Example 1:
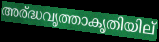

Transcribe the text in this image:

അര്ദ്ധവൃത്താകൃതിയില്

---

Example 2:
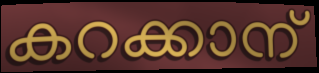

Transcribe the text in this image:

കറക്കാന്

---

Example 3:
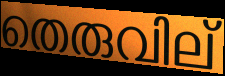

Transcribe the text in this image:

തെരുവില്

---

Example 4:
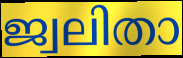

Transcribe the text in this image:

ജ്വലിതാ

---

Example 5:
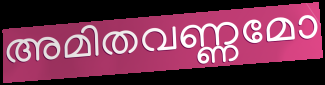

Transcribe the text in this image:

അമിതവണ്ണമോ